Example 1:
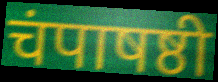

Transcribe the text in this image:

चंपाषष्ठी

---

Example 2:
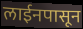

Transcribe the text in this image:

लाईनपासून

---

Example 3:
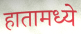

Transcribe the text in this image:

हातामध्ये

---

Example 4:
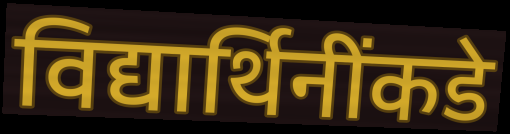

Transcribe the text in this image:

विद्यार्थिनींकडे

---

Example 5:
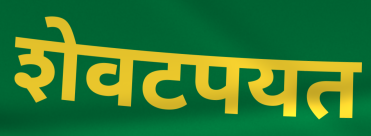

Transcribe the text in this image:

शेवटपयत